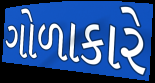
ગોળાકારે